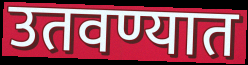
उतवण्यात